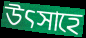
উৎসাহে